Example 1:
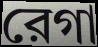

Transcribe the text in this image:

রেগা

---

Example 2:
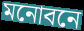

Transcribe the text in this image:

মনোবনে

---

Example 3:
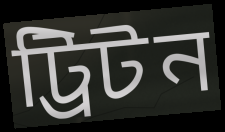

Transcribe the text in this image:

ট্রিটন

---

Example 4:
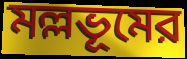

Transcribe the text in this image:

মল্লভূমের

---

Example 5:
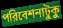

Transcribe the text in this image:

পরিবেশনাটুকু